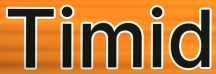
Timid